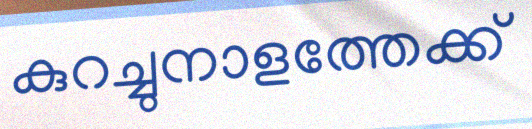
കുറച്ചുനാളത്തേക്ക്